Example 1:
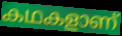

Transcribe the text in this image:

കഥകളാണ്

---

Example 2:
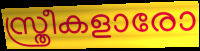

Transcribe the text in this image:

സ്ത്രീകളാരോ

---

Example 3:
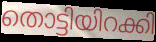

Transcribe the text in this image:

തൊട്ടിയിറക്കി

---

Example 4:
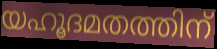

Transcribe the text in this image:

യഹൂദമതത്തിന്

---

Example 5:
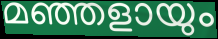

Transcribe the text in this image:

മഞ്ഞളായും